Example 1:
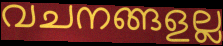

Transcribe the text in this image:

വചനങ്ങളല്ല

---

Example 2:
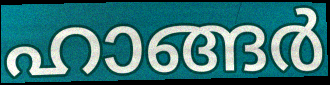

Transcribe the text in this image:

ഹാങ്ങർ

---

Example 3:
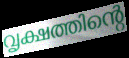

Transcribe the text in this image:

വൃക്ഷത്തിന്റെ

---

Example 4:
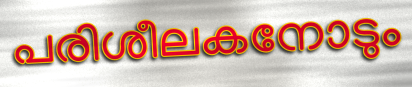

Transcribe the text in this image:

പരിശീലകനോടും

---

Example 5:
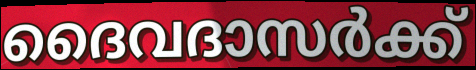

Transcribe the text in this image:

ദൈവദാസർക്ക്